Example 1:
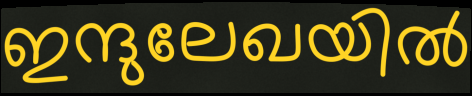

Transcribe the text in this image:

ഇന്ദുലേഖയിൽ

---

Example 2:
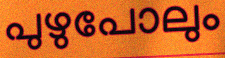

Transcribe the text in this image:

പുഴുപോലും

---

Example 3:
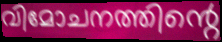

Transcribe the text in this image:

വിമോചനത്തിന്റെ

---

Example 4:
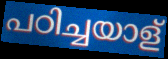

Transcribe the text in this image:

പഠിച്ചയാള്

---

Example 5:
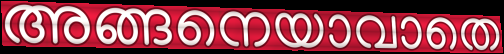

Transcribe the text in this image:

അങ്ങനെയാവാതെ